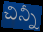
చిన్నీ